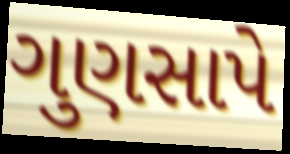
ગુણસાપે